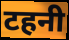
टहनी